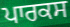
ਪਾਰਕਸ